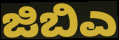
ಜಿಬಿಎ